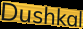
Dushkal